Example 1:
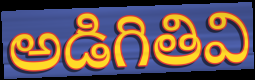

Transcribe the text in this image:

అడిగితివి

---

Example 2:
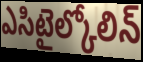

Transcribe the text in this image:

ఎసిటైల్కోలిన్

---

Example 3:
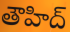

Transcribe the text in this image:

తౌహిద్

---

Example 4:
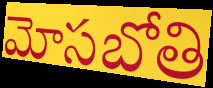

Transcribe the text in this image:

మోసబోతి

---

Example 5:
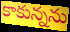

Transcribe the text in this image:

కాకున్నను